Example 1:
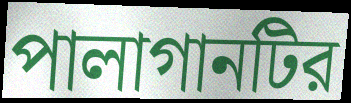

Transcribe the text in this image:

পালাগানটির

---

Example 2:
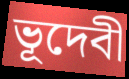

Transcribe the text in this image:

ভূদেবী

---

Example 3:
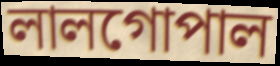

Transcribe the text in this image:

লালগোপাল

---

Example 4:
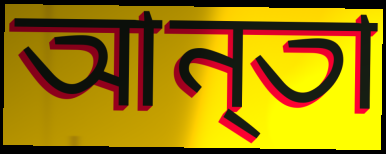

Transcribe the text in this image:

আন্‌তা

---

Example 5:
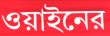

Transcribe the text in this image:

ওয়াইনের